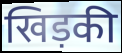
खिड़की